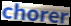
chorer